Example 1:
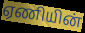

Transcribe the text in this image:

ஏணியின்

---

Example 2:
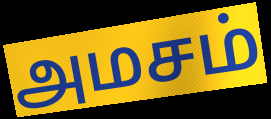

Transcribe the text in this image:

அமசம்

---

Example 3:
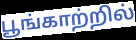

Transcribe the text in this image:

பூங்காற்றில்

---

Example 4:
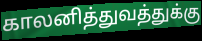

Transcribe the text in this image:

காலனித்துவத்துக்கு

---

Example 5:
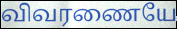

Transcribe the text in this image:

விவரணையே